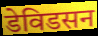
डेविडसन